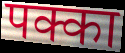
पक्का